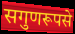
सगुणरूपसे